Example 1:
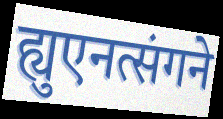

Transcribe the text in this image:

ह्युएनत्संगने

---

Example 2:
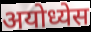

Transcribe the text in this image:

अयोध्येस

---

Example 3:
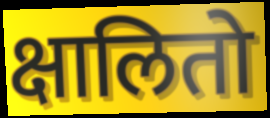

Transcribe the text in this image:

क्षालितो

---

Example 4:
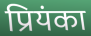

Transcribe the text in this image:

प्रियंका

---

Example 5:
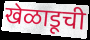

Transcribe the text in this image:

खेळाडूची